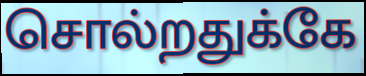
சொல்றதுக்கே